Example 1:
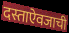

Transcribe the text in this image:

दस्ताऐवजाची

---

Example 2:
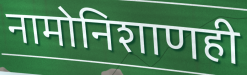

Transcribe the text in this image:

नामोनिशाणही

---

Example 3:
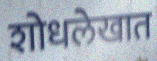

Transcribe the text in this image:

शोधलेखात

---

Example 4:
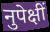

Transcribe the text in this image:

नुपेक्षीं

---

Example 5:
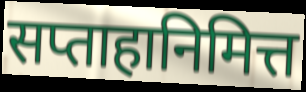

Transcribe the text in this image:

सप्ताहानिमित्त